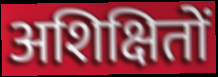
अशिक्षितों